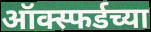
ऑक्स्फर्डच्या